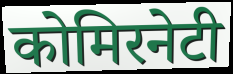
कोमिरनेटी